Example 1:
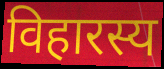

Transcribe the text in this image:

विहारस्य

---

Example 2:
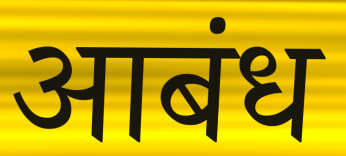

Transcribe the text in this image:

आबंध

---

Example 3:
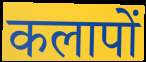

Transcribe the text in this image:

कलापों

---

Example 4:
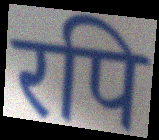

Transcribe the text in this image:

रपि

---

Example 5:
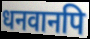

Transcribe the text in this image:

धनवानपि